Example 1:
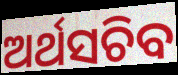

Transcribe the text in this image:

ଅର୍ଥସଚିବ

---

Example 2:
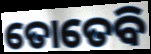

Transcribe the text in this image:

ତୋତେବି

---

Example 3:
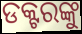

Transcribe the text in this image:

ଡକ୍ଟରଙ୍କୁ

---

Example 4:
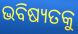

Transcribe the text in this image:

ଭବିଷ୍ୟତକୁ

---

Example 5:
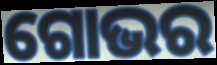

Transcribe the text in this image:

ଗୋଭର